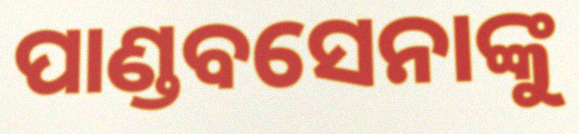
ପାଣ୍ଡବସେନାଙ୍କୁ